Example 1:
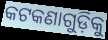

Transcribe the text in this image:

କଟକଣାଗୁଡ଼ିକୁ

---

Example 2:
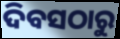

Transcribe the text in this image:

ଦିବସଠାରୁ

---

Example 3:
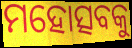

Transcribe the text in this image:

ମହୋତ୍ସବକୁ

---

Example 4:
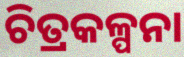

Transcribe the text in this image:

ଚିତ୍ରକଳ୍ପନା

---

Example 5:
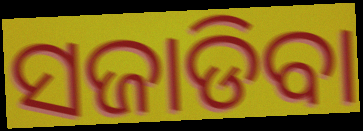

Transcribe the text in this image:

ସଜାଡିବା